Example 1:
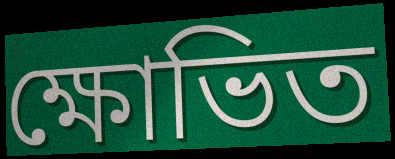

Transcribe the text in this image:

ক্ষোভিত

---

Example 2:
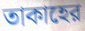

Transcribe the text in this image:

তাকাহের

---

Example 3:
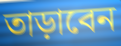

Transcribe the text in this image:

তাড়াবেন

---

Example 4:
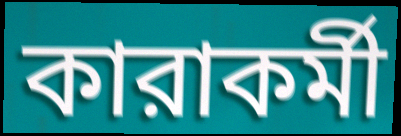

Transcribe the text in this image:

কারাকর্মী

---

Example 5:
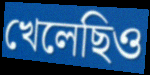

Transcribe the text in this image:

খেলেছিও